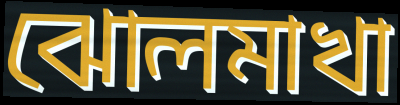
ঝোলমাখা